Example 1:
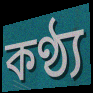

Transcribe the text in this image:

কণ্ঠ্য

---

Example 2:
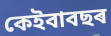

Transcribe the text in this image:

কেইবাবছৰ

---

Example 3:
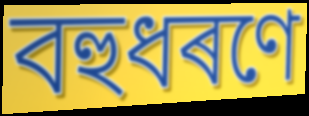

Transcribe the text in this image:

বহুধৰণে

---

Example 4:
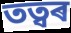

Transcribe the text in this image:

তত্বৰ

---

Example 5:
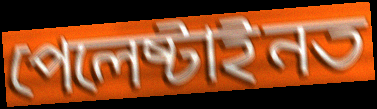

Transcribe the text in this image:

পেলেষ্টাইনত